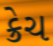
ક્રેચ